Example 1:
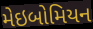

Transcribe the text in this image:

મેઇબોમિયન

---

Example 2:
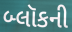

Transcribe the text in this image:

બ્લૉકની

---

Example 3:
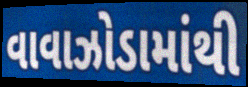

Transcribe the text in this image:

વાવાઝોડામાંથી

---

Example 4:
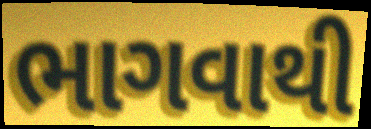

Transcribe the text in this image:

ભાગવાથી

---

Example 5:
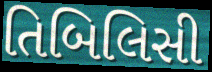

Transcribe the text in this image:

તિબિલિસી